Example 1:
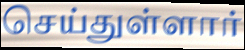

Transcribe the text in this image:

செய்துள்ளார்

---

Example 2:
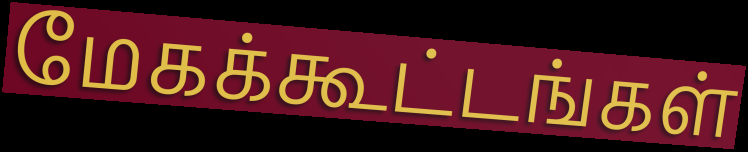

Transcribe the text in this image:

மேகக்கூட்டங்கள்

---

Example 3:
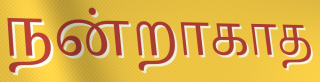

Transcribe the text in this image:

நன்றாகாத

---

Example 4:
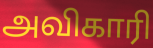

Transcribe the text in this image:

அவிகாரி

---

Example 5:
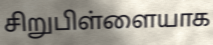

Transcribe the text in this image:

சிறுபிள்ளையாக